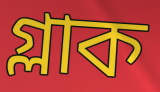
গ্লাক